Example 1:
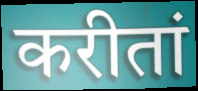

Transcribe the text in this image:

करीतां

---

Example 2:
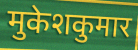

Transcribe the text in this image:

मुकेशकुमार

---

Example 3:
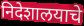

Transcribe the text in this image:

निदेशालयाचे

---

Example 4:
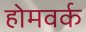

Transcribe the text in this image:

होमवर्क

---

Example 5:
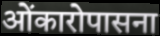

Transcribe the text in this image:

ओंकारोपासना